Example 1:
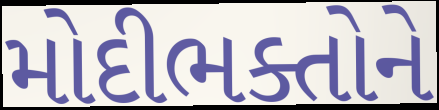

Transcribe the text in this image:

મોદીભક્તોને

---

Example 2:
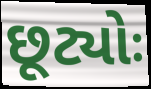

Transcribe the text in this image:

છૂટ્યોઃ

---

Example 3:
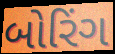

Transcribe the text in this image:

બોરિંગ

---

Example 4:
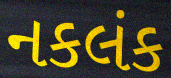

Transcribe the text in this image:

નકલંક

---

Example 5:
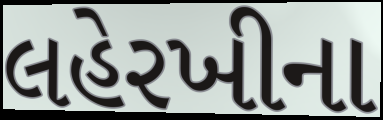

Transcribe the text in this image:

લહેરખીના